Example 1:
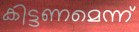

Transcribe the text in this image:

കിട്ടണമെന്ന്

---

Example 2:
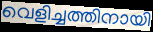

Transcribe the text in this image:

വെളിച്ചത്തിനായി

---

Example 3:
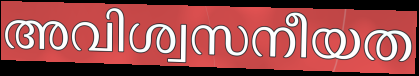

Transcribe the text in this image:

അവിശ്വസനീയത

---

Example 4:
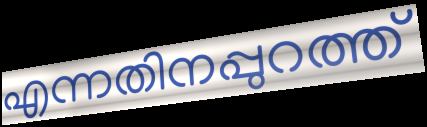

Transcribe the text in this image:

എന്നതിനപ്പുറത്ത്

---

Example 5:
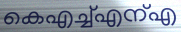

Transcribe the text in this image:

കെഎച്ച്എന്എ